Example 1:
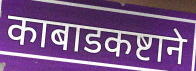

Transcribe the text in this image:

काबाडकष्टाने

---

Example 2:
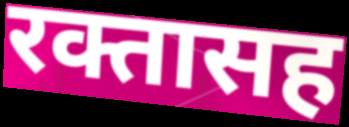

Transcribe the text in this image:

रक्तासह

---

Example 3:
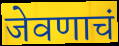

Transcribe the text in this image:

जेवणाचं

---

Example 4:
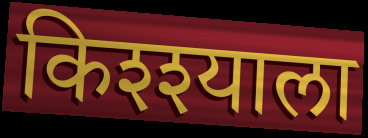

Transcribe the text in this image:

किश्श्याला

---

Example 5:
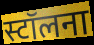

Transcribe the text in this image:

स्टॉलना